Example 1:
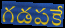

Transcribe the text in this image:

గడపకే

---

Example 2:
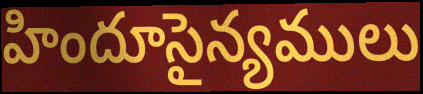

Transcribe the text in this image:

హిందూసైన్యములు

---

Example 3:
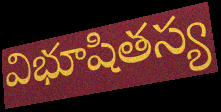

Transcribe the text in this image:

విభూషితస్య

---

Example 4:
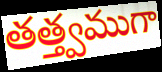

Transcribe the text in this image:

తత్త్వముగా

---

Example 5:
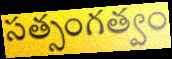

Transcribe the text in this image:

సత్సంగత్వం